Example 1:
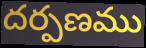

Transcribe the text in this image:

దర్పణము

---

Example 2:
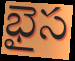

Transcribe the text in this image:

భైస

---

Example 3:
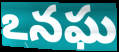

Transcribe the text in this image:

ఽనఘ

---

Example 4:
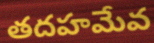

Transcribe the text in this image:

తదహమేవ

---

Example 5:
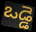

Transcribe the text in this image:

ఒడ్డె